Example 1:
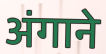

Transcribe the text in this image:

अंगाने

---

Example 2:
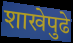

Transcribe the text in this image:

शाखेपुढे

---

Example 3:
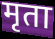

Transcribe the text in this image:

मृता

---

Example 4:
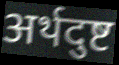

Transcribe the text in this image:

अर्थदुष्ट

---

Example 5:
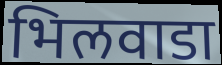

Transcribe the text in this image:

भिलवाडा